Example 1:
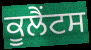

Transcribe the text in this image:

ਕੂਲੈਂਟਸ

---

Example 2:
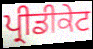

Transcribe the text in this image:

ਪ੍ਰੀਡੀਕੇਟ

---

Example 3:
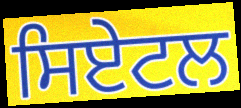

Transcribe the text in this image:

ਸਿਏਟਲ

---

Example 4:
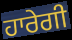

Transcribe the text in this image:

ਹਾਰੇਗੀ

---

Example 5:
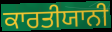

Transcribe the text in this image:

ਕਾਰਤੀਯਾਨੀ